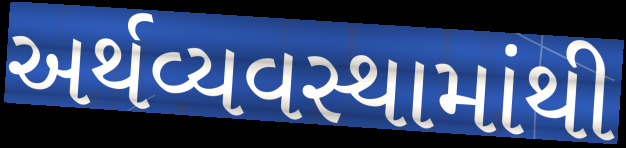
અર્થવ્યવસ્થામાંથી